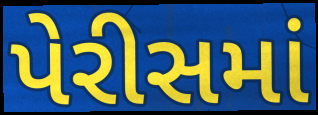
પેરીસમાં